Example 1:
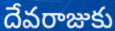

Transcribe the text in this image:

దేవరాజుకు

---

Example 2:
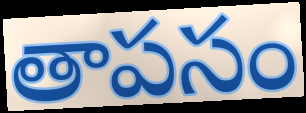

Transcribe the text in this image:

తాపసం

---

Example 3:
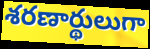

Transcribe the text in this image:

శరణార్థులుగా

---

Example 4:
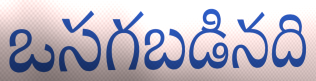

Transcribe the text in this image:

ఒసగబడినది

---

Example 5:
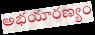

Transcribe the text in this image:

అభయారణ్యం